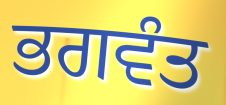
ਭਗਵੰਤ